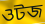
ওটজ